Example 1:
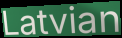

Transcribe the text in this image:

Latvian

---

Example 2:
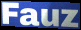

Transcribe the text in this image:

Fauz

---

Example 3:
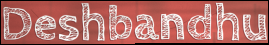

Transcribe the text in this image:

Deshbandhu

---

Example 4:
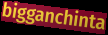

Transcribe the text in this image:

bigganchinta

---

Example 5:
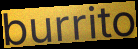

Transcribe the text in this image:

burrito